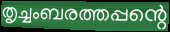
തൃച്ചംബരത്തപ്പന്റെ